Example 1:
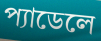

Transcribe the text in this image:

প্যাডেলে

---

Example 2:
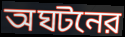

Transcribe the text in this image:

অঘটনের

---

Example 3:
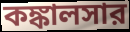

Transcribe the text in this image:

কঙ্কালসার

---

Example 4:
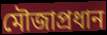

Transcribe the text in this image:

মৌজাপ্রধান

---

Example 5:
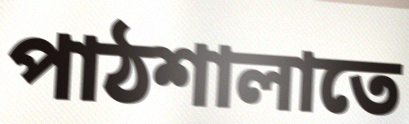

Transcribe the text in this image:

পাঠশালাতে